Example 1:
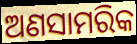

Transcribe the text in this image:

ଅଣସାମରିକ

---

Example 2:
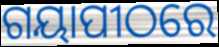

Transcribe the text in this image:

ଗୟାପୀଠରେ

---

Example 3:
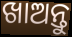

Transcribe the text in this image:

ଖାଅନ୍ତୁ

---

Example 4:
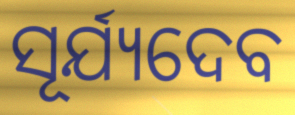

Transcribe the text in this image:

ସୂର୍ଯ୍ୟଦେବ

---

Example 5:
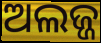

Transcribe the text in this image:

ଅଲଜ୍ଜ